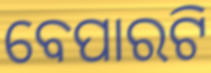
ବେପାରଟି